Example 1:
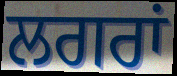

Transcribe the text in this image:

ਲਗਰਾਂ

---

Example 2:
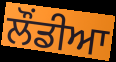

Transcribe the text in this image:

ਲੌਂਡੀਆ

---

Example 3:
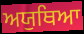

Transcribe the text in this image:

ਅਯੁਥਿਆ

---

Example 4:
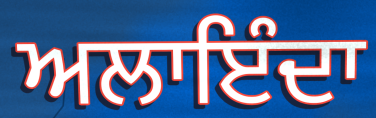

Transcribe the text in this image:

ਅਲਾਇੰਦਾ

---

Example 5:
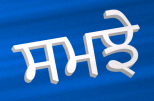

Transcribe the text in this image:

ਸਮਝੇ